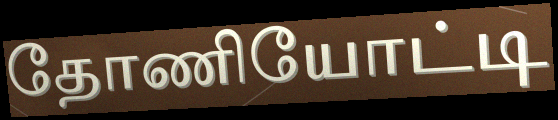
தோணியோட்டி